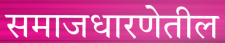
समाजधारणेतील